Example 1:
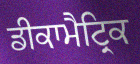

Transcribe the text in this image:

ਡੀਕਾਮੈਟ੍ਰਿਕ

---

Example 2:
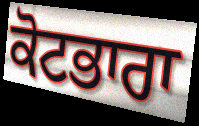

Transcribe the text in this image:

ਕੋਟਭਾਰਾ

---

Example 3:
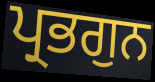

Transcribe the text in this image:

ਪ੍ਰਭਗੁਨ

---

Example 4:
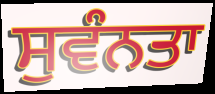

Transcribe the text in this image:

ਸੁਵੰਨਤਾ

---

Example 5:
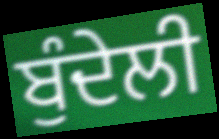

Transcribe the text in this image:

ਬੁੰਦੇਲੀ